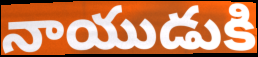
నాయుడుకి